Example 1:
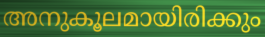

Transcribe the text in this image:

അനുകൂലമായിരിക്കും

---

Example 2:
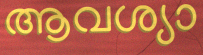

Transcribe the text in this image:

ആവശ്യാ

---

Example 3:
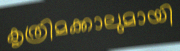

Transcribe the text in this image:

കൃത്രിമക്കാലുമായി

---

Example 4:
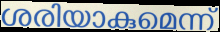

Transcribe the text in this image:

ശരിയാകുമെന്ന്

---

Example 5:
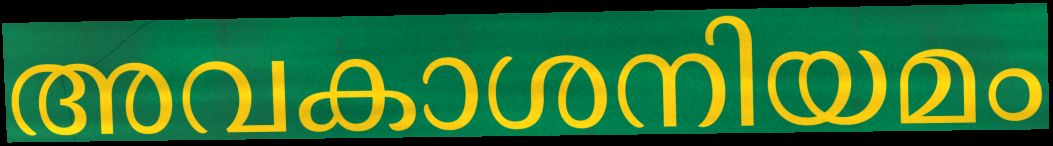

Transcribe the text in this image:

അവകാശനിയമം